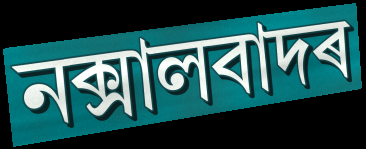
নক্সালবাদৰ